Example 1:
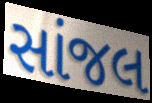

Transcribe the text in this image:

સાંજલ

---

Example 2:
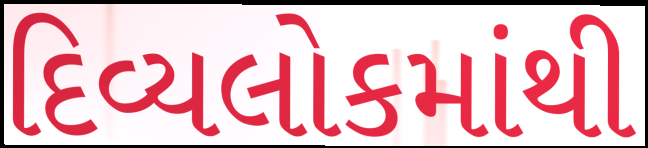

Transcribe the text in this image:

દિવ્યલોકમાંથી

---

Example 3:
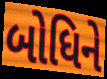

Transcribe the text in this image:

બોધિને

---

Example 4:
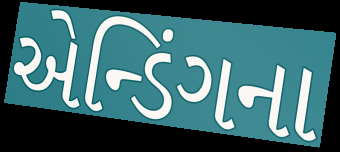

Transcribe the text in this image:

એન્ડિંગના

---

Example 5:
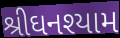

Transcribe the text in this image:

શ્રીઘનશ્યામ